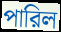
পারিল